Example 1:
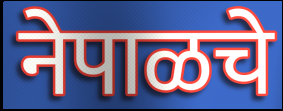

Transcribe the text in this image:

नेपाळचे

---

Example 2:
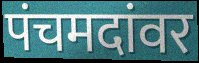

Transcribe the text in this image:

पंचमदांवर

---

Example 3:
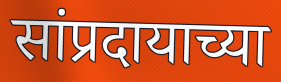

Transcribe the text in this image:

सांप्रदायाच्या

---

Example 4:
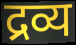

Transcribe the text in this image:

द्रव्य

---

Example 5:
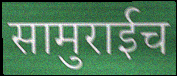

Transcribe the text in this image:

सामुराईच